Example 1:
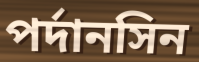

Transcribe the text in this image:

পর্দানসিন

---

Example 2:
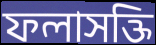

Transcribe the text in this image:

ফলাসক্তি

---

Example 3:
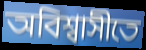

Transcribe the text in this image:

অবিশ্বাসীতে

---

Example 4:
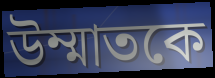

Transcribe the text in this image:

উম্মাতকে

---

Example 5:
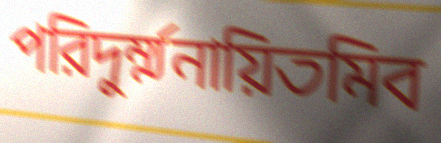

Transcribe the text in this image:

পরিদুর্ম্মনায়িতমিব